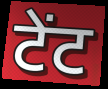
टेंट